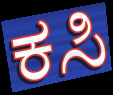
ಕಸಿ